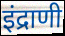
इंद्राणी